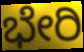
ಭೇರಿ